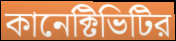
কানেক্টিভিটির